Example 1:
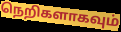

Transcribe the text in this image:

நெறிகளாகவும்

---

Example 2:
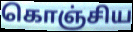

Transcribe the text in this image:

கொஞ்சிய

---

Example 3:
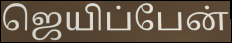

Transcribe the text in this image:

ஜெயிப்பேன்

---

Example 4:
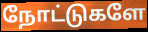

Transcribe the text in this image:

நோட்டுகளே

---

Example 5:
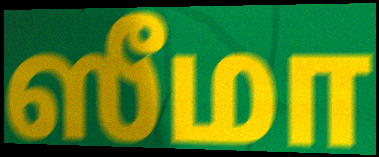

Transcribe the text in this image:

ஸீமா